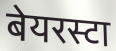
बेयरस्टा